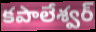
కపాలేశ్వర్